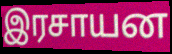
இரசாயன